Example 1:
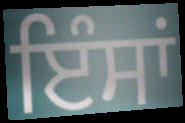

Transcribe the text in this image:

ਇੰਸਾਂ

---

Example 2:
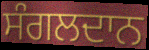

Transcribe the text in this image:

ਸੰਗਲਦਾਨ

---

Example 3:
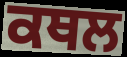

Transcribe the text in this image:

ਕਥਲ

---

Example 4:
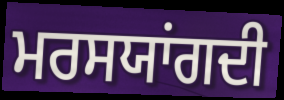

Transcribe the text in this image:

ਮਰਸਯਾਂਗਦੀ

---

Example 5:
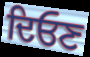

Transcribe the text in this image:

ਦਿਓਣ